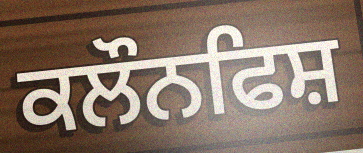
ਕਲੌਨਫਿਸ਼